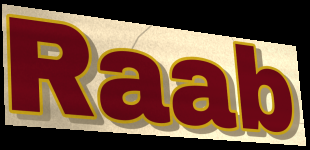
Raab